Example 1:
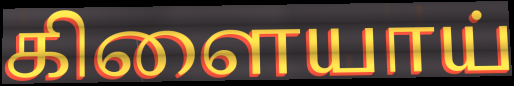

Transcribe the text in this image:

கிளையாய்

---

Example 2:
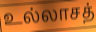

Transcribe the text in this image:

உல்லாசத்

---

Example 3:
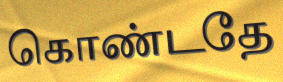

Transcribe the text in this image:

கொண்டதே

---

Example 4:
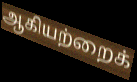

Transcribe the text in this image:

ஆகியற்றைக்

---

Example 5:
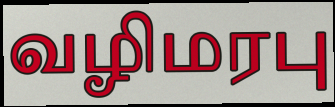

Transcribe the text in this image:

வழிமரபு